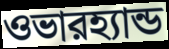
ওভারহ্যান্ড